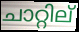
ചാറ്റില്